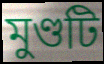
মুণ্ডটি